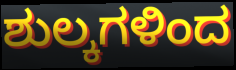
ಶುಲ್ಕಗಳಿಂದ